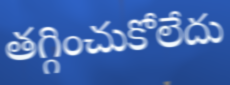
తగ్గించుకోలేదు